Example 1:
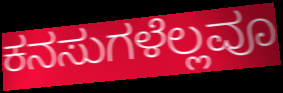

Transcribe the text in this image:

ಕನಸುಗಳೆಲ್ಲವೂ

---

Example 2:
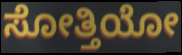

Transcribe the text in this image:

ಸೋತ್ತಿಯೋ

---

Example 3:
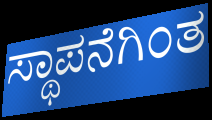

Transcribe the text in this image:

ಸ್ಥಾಪನೆಗಿಂತ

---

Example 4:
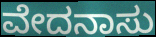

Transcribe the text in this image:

ವೇದನಾಸು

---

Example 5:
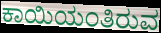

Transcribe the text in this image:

ಕಾಯಿಯಂತಿರುವ